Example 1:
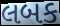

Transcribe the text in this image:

લબક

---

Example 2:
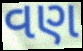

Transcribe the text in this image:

વણ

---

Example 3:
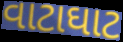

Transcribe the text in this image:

વાટાઘાટ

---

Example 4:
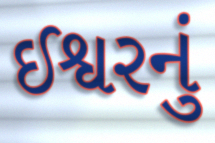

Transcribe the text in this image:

ઈશ્વરનું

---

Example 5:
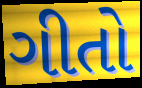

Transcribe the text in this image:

ગીતો